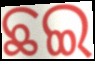
ଛଇ